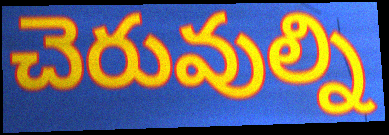
చెరువుల్ని